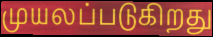
முயலப்படுகிறது